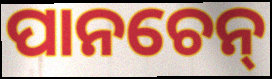
ପାନଚେନ୍